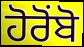
ਹੋਰੋਂਬੋ